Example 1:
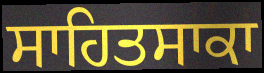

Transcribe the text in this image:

ਸਾਹਿਤਸਾਕਾ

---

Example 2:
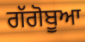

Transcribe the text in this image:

ਗੱਗੋਬੂਆ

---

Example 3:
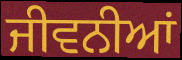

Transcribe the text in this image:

ਜੀਵਨੀਆਂ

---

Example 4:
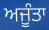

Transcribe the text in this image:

ਅਜੂੰਤਾ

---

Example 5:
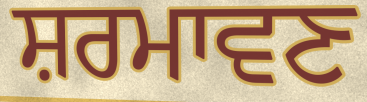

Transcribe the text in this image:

ਸ਼ਰਮਾਵਣ